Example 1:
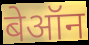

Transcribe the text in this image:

बेऑन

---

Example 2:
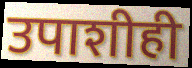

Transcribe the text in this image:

उपाशीही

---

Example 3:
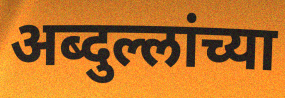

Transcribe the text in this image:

अब्दुल्लांच्या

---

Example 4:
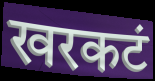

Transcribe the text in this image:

खरकटं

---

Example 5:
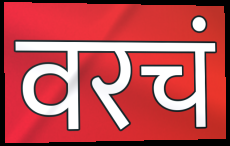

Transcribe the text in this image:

वरचं